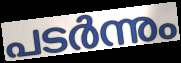
പടർന്നും